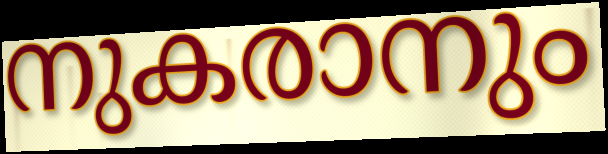
നുകരാനും